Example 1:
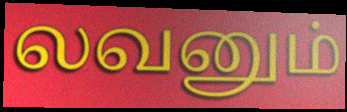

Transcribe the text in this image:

லவனும்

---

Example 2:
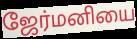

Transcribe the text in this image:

ஜேர்மனியை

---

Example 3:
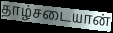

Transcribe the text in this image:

தாழ்சடையான்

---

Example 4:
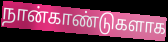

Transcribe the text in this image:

நான்காண்டுகளாக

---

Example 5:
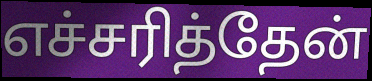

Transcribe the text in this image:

எச்சரித்தேன்